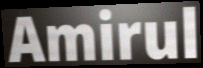
Amirul